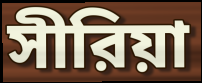
সীরিয়া